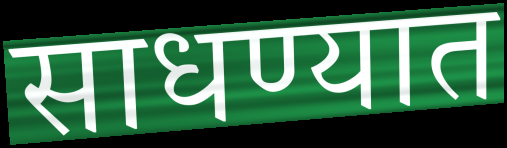
साधण्यात